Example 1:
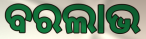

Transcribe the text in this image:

ବରଲାଭ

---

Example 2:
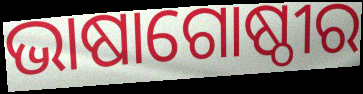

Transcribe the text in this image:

ଭାଷାଗୋଷ୍ଠୀର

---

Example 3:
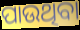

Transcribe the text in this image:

ପାଉଥିବା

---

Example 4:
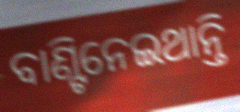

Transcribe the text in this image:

ବାଣ୍ଟିନେଇଥାନ୍ତି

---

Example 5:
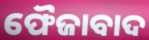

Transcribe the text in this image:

ଫୈଜାବାଦ